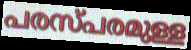
പരസ്പരമുള്ള